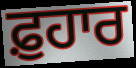
ਫ਼ੁਹਾਰ